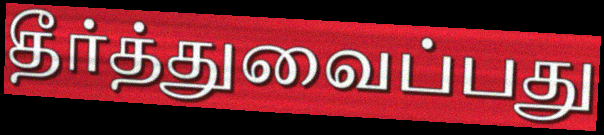
தீர்த்துவைப்பது